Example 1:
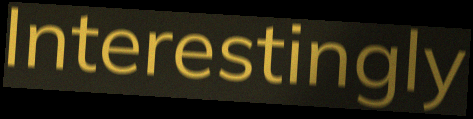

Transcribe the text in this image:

Interestingly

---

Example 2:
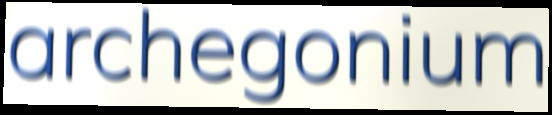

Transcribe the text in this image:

archegonium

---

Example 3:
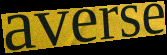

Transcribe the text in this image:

averse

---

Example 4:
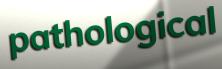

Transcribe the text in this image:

pathological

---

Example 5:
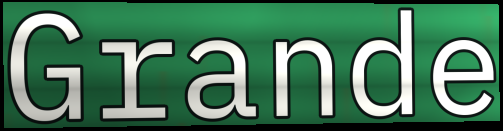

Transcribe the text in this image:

Grande